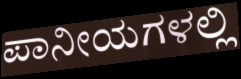
ಪಾನೀಯಗಳಲ್ಲಿ